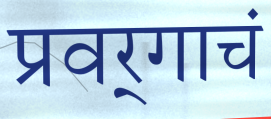
प्रवर्गाचं